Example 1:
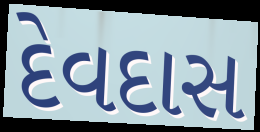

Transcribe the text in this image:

દેવદાસ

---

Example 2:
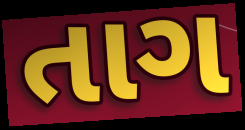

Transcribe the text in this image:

તાગ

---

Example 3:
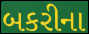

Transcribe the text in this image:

બકરીના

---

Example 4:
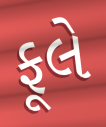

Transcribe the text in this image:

ફૂલે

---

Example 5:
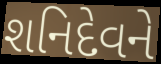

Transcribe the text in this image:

શનિદેવને